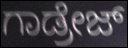
ಗಾಡ್ರೇಜ್